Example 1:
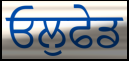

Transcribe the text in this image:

ਓਲੁਫੇਡ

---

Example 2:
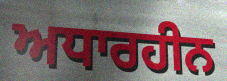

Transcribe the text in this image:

ਅਧਾਰਹੀਨ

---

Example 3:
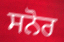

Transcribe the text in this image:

ਸਨੋਰ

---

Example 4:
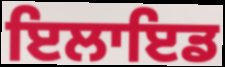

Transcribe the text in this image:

ਇਲਾਇਡ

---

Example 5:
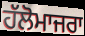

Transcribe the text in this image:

ਹੱਲੋਮਾਜਰਾ